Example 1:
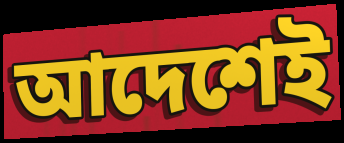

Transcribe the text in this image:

আদেশেই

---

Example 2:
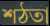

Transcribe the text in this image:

শঠতা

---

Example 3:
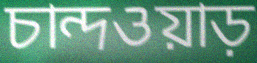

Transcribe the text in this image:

চান্দওয়াড়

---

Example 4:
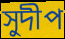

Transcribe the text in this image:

সুদীপ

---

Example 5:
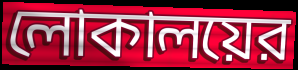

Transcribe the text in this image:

লোকালয়ের